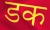
डक